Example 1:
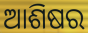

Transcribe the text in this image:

ଆଶିଷର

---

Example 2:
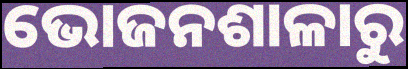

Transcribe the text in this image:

ଭୋଜନଶାଳାରୁ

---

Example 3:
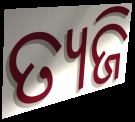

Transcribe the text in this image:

ତ୍ୟଜି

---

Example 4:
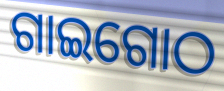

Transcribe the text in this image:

ଗାଇଗୋଠ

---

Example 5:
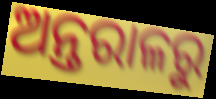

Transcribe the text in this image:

ଅନ୍ତରାଳରୁ